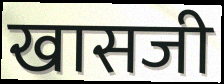
खासजी